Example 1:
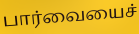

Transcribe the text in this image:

பார்வையைச்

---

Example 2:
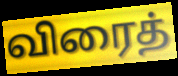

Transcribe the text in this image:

விரைத்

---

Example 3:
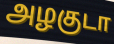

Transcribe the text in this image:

அழகுடா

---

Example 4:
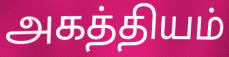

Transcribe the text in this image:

அகத்தியம்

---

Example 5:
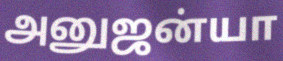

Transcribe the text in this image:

அனுஜன்யா